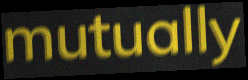
mutually